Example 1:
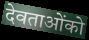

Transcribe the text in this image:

देवताओंको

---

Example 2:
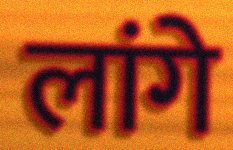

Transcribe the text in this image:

लांगे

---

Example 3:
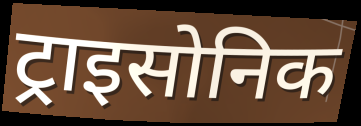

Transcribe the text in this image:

ट्राइसोनिक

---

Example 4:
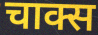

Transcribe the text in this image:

चाक्स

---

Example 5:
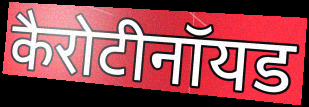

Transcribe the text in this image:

कैरोटीनॉयड